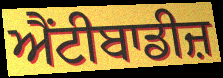
ਐਂਟੀਬਾਡੀਜ਼